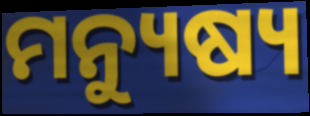
ମନ୍ୟୁଷ୍ୟ